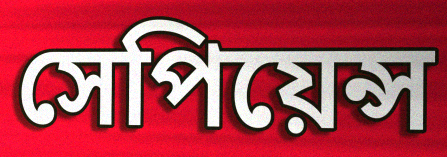
সেপিয়েন্স